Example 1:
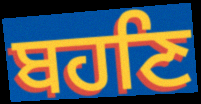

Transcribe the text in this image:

ਬਹਣਿ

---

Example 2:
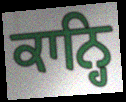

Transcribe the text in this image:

ਕਾਨ੍ਹਿ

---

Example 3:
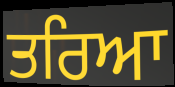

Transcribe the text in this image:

ਤਰਿਆ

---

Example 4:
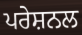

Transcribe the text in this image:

ਪਰੇਸ਼ਨਲ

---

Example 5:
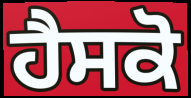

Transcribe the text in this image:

ਹੈਸਕੋ